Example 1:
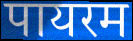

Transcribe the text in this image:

पायरम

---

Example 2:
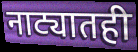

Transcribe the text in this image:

नाट्यातही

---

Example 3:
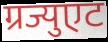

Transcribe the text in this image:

ग्रज्युएट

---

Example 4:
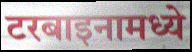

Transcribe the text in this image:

टरबाइनामध्ये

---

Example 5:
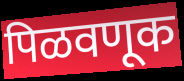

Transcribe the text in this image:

पिळवणूक